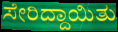
ಸೇರಿದ್ದಾಯಿತು